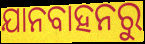
ଯାନବାହନରୁ